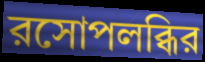
রসোপলব্ধির